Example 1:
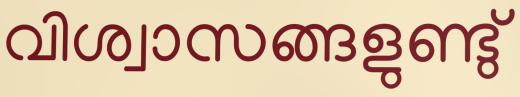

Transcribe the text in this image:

വിശ്വാസങ്ങളുണ്ടു്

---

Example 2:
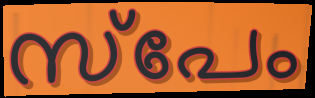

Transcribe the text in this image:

സ്പേം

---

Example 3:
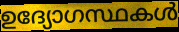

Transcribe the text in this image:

ഉദ്യോഗസ്ഥകൾ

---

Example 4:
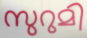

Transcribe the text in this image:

സുറുമി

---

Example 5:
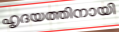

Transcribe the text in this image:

ഹൃദയത്തിനായി